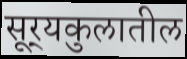
सूर्यकुलातील